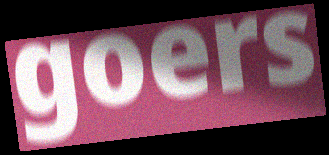
goers